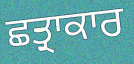
ਛਤ੍ਰਾਕਾਰ